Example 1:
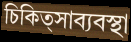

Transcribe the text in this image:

চিকিত্সাব্যবস্থা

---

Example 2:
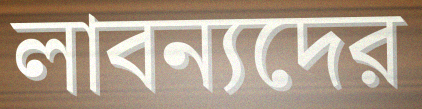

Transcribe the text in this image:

লাবন্যদের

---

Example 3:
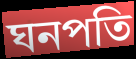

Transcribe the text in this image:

ঘনপতি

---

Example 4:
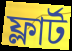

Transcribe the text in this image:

ফ্লার্ট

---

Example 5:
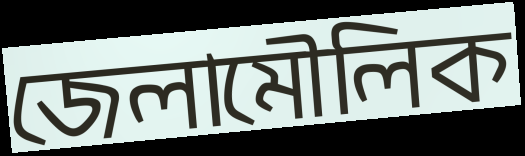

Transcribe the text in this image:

জেলামৌলিক